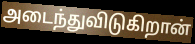
அடைந்துவிடுகிறான்